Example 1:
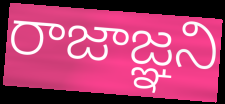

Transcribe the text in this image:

రాజాజ్ఞని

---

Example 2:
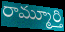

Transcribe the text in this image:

రామ్మూర్తి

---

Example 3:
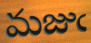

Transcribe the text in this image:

మజుఁ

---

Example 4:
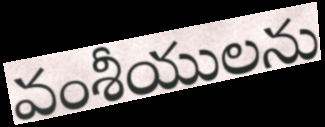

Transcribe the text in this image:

వంశీయులను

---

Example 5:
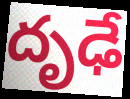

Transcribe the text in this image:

దృఢే